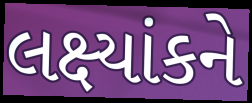
લક્ષ્યાંકને